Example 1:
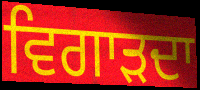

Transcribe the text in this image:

ਵਿਗਾੜਦਾ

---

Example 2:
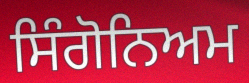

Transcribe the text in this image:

ਸਿੰਗੋਨਿਅਮ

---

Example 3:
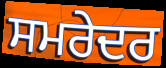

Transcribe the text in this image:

ਸਮਰੇਦਰ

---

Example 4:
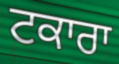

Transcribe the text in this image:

ਟਕਾਰਾ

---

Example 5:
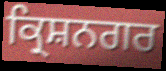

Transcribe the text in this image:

ਕ੍ਰਿਸ਼ਨਗਰ